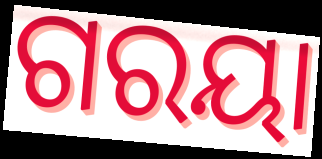
ଗରୟା